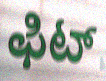
ಫಿಟ್